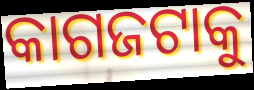
କାଗଜଟାକୁ